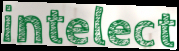
intelect